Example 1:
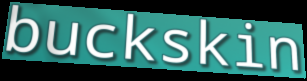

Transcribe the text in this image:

buckskin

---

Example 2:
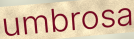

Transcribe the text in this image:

umbrosa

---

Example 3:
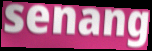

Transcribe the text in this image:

senang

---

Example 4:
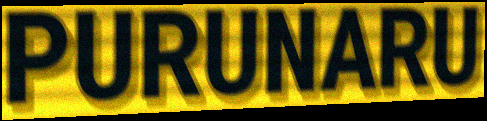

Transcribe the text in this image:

PURUNARU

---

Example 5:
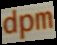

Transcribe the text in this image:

dpm